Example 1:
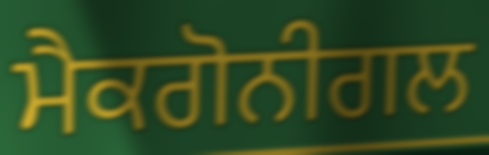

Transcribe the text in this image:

ਮੈਕਗੋਨੀਗਲ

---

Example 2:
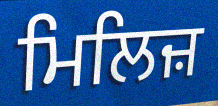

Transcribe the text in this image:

ਮਿਲਿਜ਼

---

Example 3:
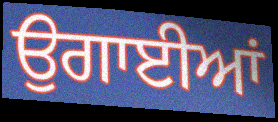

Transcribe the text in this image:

ਉਗਾਈਆਂ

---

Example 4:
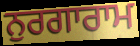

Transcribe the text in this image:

ਨੁਰਗਾਰਾਮ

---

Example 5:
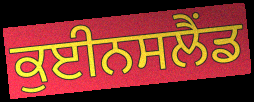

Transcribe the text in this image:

ਕੁਈਨਸਲੈਂਡ